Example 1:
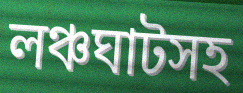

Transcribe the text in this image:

লঞ্চঘাটসহ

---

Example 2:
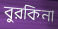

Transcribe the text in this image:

বুরকিনা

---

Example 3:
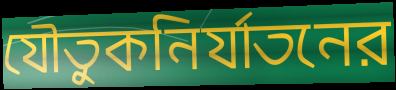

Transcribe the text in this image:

যৌতুকনির্যাতনের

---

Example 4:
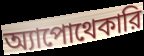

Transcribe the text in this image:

অ্যাপোথেকারি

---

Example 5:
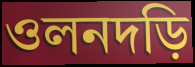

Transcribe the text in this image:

ওলনদড়ি